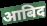
आबिद